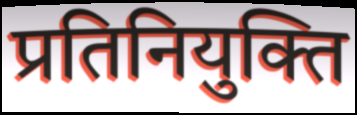
प्रतिनियुक्ति